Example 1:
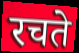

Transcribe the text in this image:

रचते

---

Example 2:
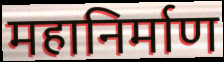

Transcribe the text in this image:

महानिर्माण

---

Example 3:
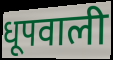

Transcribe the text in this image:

धूपवाली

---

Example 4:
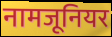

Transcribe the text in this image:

नामजूनियर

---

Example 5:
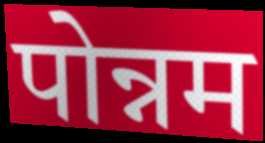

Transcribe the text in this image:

पोन्नम